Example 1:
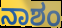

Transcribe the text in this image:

ನಾಶಂ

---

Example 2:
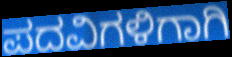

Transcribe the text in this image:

ಪದವಿಗಳಿಗಾಗಿ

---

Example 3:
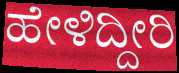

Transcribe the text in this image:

ಹೇಳಿದ್ದೀರಿ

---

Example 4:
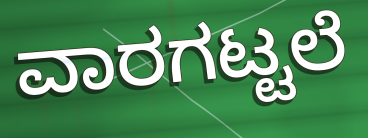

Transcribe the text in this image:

ವಾರಗಟ್ಟಲೆ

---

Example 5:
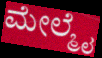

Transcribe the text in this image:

ಮೇಲ್ಮೈ